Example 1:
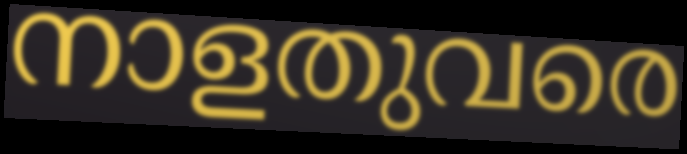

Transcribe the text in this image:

നാളതുവരെ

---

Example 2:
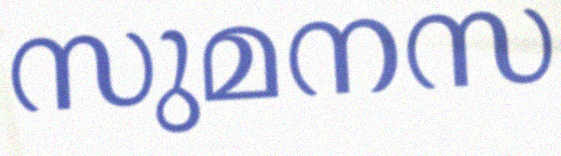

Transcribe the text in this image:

സുമനസ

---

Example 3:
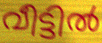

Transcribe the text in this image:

വീട്ടിൽ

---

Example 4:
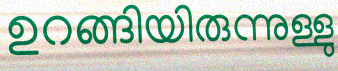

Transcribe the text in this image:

ഉറങ്ങിയിരുന്നുള്ളു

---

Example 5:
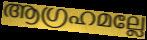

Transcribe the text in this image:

ആഗ്രഹമല്ലേ